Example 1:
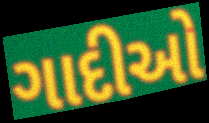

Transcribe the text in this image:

ગાદીઓ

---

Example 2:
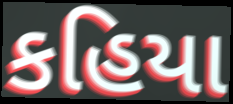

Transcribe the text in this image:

કહિયા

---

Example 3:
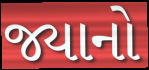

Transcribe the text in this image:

જ્યાનો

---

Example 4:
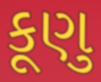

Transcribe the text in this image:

કૂણુ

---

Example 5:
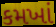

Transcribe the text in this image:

કમખાં